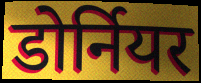
डोर्नियर